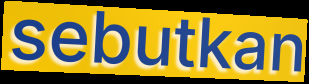
sebutkan